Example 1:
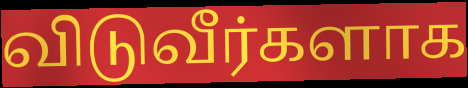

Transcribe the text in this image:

விடுவீர்களாக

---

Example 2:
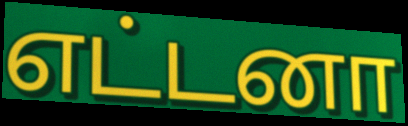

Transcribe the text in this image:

எட்டனா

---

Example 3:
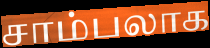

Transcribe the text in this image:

சாம்பலாக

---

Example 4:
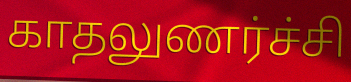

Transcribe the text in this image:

காதலுணர்ச்சி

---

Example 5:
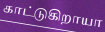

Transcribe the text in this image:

காட்டுகிறாயா